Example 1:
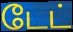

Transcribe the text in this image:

டேட்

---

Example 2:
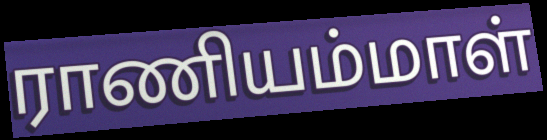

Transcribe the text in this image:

ராணியம்மாள்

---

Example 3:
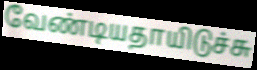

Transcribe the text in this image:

வேண்டியதாயிடுச்சு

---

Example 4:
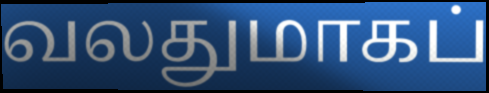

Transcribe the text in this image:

வலதுமாகப்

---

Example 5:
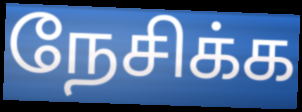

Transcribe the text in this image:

நேசிக்க